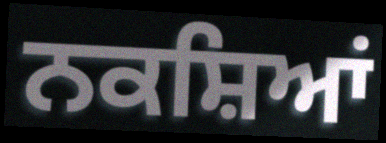
ਨਕਸ਼ਿਆਂ